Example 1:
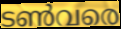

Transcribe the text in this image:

ടൺവരെ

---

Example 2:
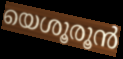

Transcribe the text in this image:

യെശൂരൂൻ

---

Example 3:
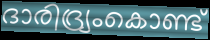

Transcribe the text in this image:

ദാരിദ്ര്യംകൊണ്ട്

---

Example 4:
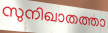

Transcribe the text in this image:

സുനിഖാതത്താ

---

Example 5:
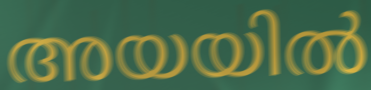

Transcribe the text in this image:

അയയിൽ